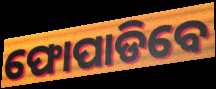
ଫୋପାଡିବେ